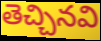
తెచ్చినవి